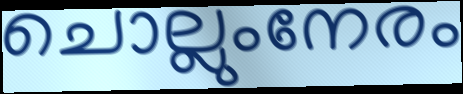
ചൊല്ലുംനേരം